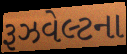
રૂઝવેલ્ટના